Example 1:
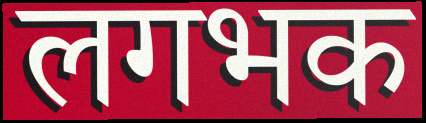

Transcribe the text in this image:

लगभक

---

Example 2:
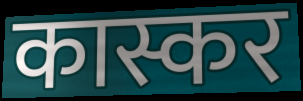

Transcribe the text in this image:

कास्कर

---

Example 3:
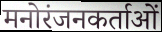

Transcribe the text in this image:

मनोरंजनकर्ताओं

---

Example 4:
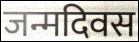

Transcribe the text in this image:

जन्मदिवस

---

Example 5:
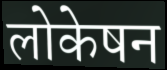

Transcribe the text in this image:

लोकेषन